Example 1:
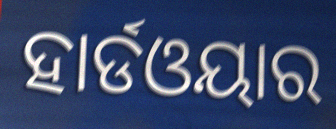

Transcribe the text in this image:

ହାର୍ଡଓୟାର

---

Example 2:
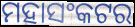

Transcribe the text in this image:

ମହାସଂକଟର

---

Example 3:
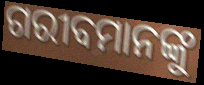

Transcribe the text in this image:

ଗରୀବମାନଙ୍କୁ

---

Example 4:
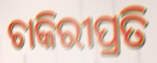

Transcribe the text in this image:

ଚାକିରୀପ୍ରତି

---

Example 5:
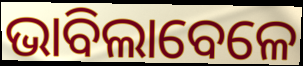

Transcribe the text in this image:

ଭାବିଲାବେଳେ